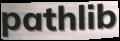
pathlib